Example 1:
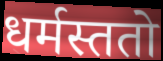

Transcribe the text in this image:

धर्मस्ततो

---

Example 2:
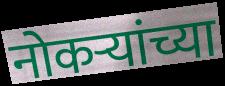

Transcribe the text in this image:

नोकऱ्यांच्या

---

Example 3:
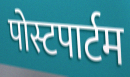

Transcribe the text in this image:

पोस्टपार्टम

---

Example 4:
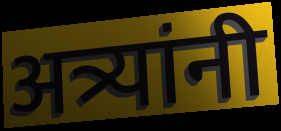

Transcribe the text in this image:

अत्र्यांनी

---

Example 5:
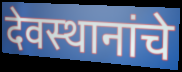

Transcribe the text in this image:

देवस्थानांचे